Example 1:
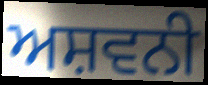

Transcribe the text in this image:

ਅਸ਼ਵਨੀ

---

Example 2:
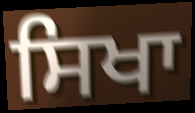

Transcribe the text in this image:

ਸਿਖਾ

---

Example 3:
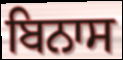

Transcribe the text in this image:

ਬਿਨਾਸ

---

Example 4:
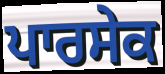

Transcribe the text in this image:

ਪਾਰਸੇਕ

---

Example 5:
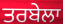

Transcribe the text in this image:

ਤਰਬੇਲਾ